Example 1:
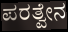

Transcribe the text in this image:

ಪರತ್ವೇನ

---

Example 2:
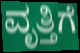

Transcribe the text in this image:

ವೃತ್ತಿಗೆ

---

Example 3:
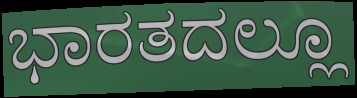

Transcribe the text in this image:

ಭಾರತದಲ್ಲೂ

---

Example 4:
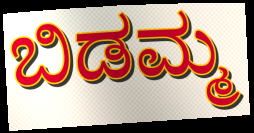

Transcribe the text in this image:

ಬಿಡಮ್ಮ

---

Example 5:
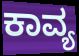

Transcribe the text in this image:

ಕಾವ್ಯ